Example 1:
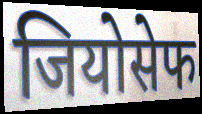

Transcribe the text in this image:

जियोसेफ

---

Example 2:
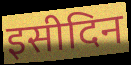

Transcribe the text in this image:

इसीदिन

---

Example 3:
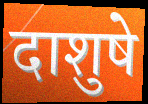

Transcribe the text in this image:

दाशुषे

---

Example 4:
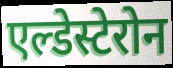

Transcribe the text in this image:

एल्डेस्टेरोन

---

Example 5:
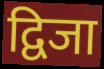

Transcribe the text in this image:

द्विजा